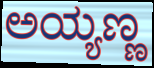
ಅಯ್ಯಣ್ಣ